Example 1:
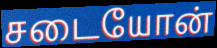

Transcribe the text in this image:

சடையோன்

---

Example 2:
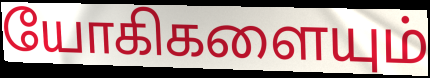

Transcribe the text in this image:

யோகிகளையும்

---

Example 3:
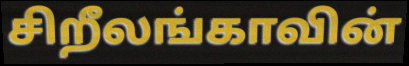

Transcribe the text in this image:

சிறீலங்காவின்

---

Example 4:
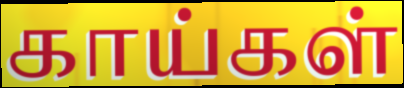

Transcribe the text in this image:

காய்கள்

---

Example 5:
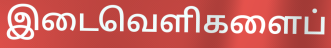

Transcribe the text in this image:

இடைவெளிகளைப்